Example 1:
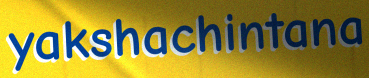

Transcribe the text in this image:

yakshachintana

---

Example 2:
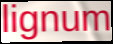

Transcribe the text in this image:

lignum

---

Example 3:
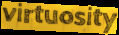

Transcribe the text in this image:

virtuosity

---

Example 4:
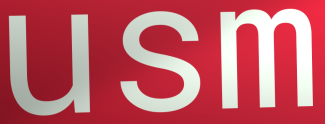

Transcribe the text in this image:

usm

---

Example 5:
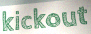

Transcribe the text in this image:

kickout